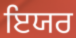
ਇਯਰ